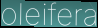
oleifera